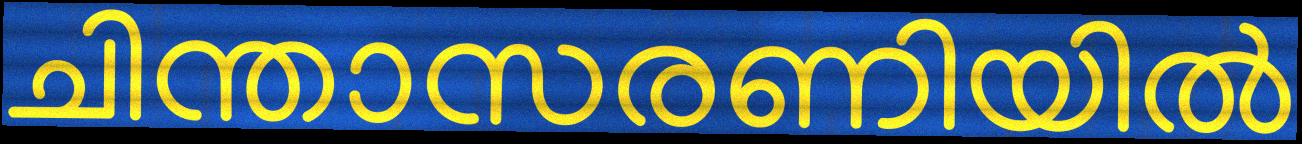
ചിന്താസരണിയിൽ